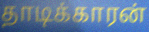
தாடிக்காரன்